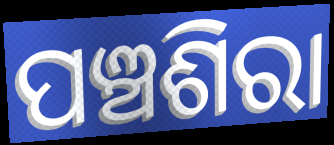
ପଞ୍ଚଶିରା